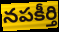
నపకీర్తి